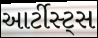
આર્ટીસ્ટ્સ